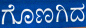
ಗೊಣಗಿದ